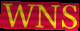
WNS